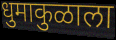
धुमाकुळाला